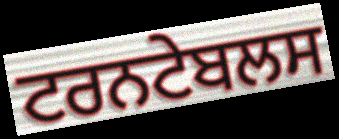
ਟਰਨਟੇਬਲਸ